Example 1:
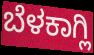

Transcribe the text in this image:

ಬೆಳಕಾಗ್ಲಿ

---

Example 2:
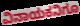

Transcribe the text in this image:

ವಿನಾಯಕನಿಗೂ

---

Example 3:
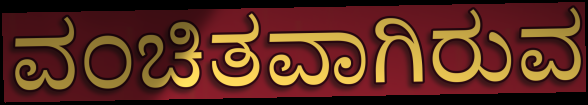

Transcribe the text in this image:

ವಂಚಿತವಾಗಿರುವ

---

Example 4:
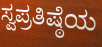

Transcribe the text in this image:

ಸ್ವಪ್ರತಿಷ್ಠೆಯ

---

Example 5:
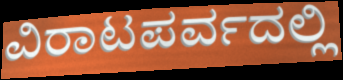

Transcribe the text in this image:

ವಿರಾಟಪರ್ವದಲ್ಲಿ